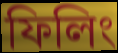
ফিলিং